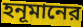
হনূমানের